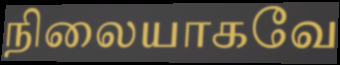
நிலையாகவே